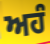
ਅਹੰ